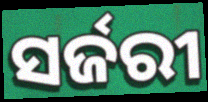
ସର୍ଜରୀ